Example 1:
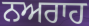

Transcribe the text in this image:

ਨਅਰਾਹ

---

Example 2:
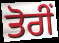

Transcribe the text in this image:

ਤੋਰੀਂ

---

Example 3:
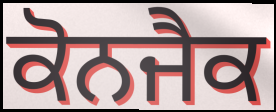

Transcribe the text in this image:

ਕੋਨਜੈਕ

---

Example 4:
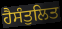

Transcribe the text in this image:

ਹੈਸੰਤੁਲਿਤ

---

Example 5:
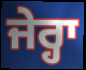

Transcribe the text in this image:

ਜੇਰ੍ਹਾ